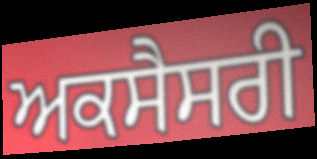
ਅਕਸੈਸਰੀ